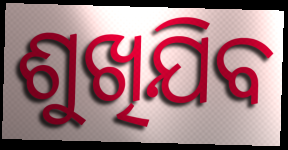
ଶୁଖିଯିବ